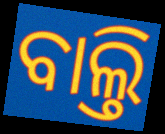
ବାଲ୍ତି